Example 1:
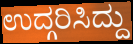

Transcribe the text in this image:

ಉದ್ಗರಿಸಿದ್ದು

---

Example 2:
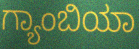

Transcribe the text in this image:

ಗ್ಯಾಂಬಿಯಾ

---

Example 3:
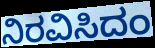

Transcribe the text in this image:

ನಿರವಿಸಿದಂ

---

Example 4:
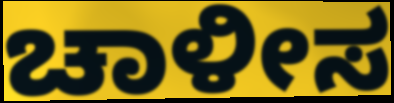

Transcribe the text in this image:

ಚಾಳೀಸ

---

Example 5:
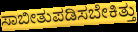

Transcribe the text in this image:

ಸಾಬೀತುಪಡಿಸಬೇಕಿತ್ತು